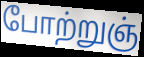
போற்றுஞ்